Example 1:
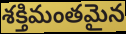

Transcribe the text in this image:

శక్తిమంతమైన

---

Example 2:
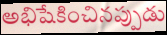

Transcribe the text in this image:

అభిషేకించినప్పుడు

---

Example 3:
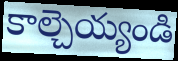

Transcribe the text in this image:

కాల్చెయ్యండి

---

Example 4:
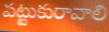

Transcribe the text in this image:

పట్టుకురావాలి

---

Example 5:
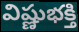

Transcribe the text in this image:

విష్ణుభక్తి